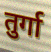
तुर्गा